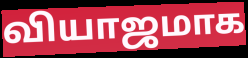
வியாஜமாக